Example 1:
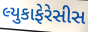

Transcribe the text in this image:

લ્યુકાફેરેસીસ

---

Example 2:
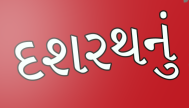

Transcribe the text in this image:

દશરથનું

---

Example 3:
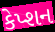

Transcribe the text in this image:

કેપ્શન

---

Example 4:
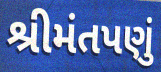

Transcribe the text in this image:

શ્રીમંતપણું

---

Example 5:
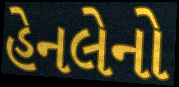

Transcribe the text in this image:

હેનલેનો